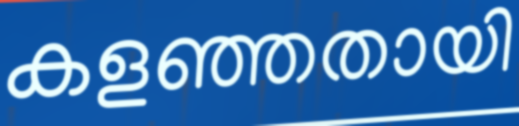
കളഞ്ഞതായി